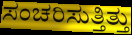
ಸಂಚರಿಸುತ್ತಿತ್ತು